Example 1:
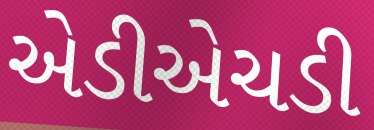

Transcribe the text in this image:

એડીએચડી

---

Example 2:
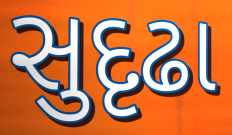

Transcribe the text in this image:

સુદૃઢા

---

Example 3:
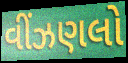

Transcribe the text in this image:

વીંઝણલો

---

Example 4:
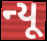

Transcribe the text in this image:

ન્યૂ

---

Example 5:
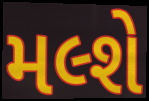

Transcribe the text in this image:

મલ્શે